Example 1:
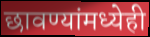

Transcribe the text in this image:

छावण्यांमध्येही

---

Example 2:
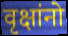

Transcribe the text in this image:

वृक्षांनो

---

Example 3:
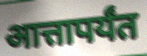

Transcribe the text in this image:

आत्तापर्यंत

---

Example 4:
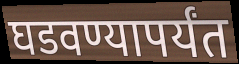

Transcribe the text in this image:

घडवण्यापर्यंत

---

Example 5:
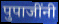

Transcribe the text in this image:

पुपाजींनी